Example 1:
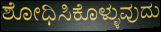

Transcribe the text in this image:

ಶೋಧಿಸಿಕೊಳ್ಳುವುದು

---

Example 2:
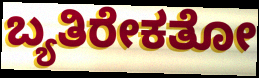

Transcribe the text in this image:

ಬ್ಯತಿರೇಕತೋ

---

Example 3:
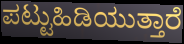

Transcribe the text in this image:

ಪಟ್ಟುಹಿಡಿಯುತ್ತಾರೆ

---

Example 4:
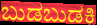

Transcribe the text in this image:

ಬುಡಬುಡಕಿ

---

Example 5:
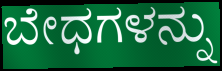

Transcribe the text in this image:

ಬೇಧಗಳನ್ನು